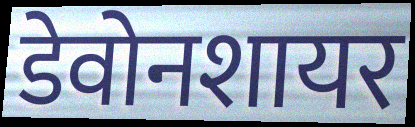
डेवोनशायर